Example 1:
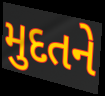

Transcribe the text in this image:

મુદતને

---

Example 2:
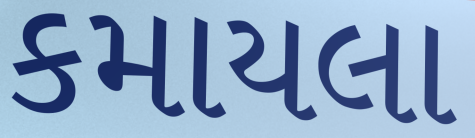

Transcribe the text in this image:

કમાયલા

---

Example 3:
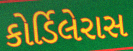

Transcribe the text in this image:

કોર્ડિલેરાસ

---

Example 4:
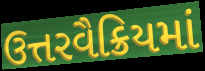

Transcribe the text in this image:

ઉત્તરવૈક્રિયમાં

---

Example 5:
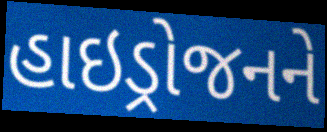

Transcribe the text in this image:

હાઇડ્રોજનને